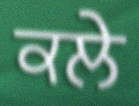
ਕਲੇ